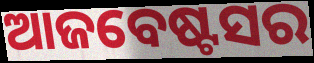
ଆଜବେଷ୍ଟସର